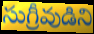
సుగ్రీవుడిని